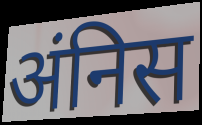
अंनिस